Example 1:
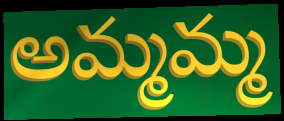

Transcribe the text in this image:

అమ్మమ్మ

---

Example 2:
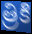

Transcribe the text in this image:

త్రికి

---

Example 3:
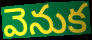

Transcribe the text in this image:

వెనుక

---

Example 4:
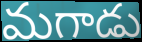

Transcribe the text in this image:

మగాడు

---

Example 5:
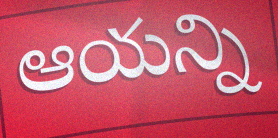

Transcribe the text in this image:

ఆయన్ని